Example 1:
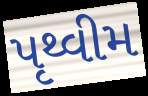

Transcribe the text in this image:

પૃથ્વીમ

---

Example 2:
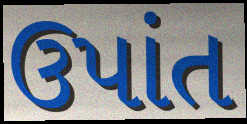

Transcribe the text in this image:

ઉપાંત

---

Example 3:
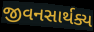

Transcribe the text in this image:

જીવનસાર્થક્ય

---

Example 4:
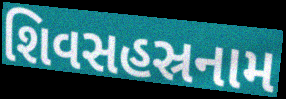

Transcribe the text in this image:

શિવસહસ્રનામ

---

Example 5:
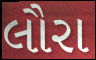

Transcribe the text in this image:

લૌરા